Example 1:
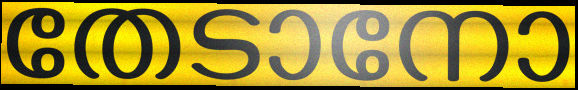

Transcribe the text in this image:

തേടാനോ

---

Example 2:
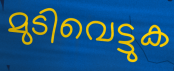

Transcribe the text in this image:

മുടിവെട്ടുക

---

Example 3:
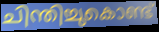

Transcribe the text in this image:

ചിന്തിച്ചുകൊണ്ട്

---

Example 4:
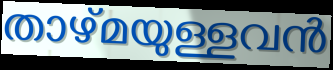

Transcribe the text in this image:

താഴ്മയുള്ളവൻ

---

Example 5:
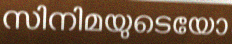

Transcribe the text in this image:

സിനിമയുടെയോ